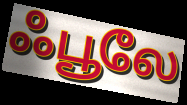
ஃபூலே